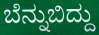
ಬೆನ್ನುಬಿದ್ದು